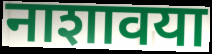
नाशावया